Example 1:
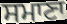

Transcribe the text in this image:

ਸਮਾਣਾ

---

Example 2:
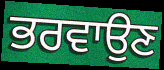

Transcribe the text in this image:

ਭਰਵਾਉਣ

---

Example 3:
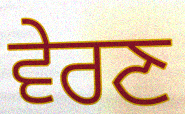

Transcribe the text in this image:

ਵੇਰਣ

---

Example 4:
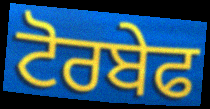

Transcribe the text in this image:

ਟੋਰਬੇਫ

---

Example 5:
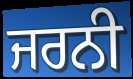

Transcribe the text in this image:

ਜਰਨੀ